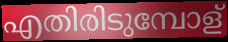
എതിരിടുമ്പോള്